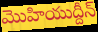
మొహియుద్దీన్